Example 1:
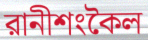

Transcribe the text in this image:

রানীশংকৈল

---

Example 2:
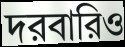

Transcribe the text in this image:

দরবারিও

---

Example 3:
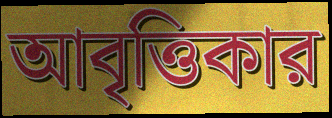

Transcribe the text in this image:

আবৃত্তিকার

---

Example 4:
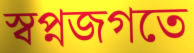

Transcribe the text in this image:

স্বপ্নজগতে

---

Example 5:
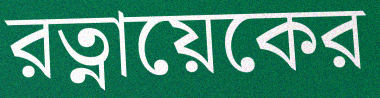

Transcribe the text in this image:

রত্নায়েকের